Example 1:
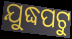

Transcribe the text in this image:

ଯୁଦ୍ଧପଟୁ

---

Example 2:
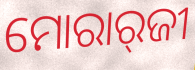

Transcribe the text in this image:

ମୋରାର୍‍ଜୀ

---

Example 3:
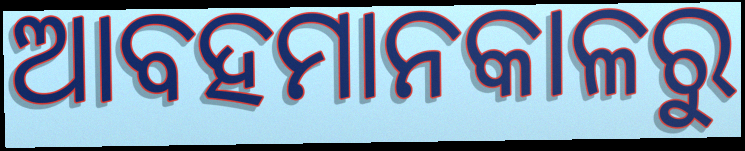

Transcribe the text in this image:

ଆବହମାନକାଳରୁ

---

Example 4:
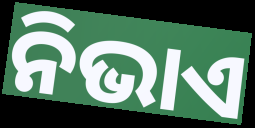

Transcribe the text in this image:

ନିଭାଏ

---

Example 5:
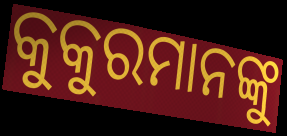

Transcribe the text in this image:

କୁକୁରମାନଙ୍କୁ